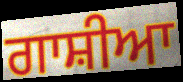
ਗਾਸ਼ੀਆ